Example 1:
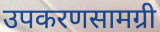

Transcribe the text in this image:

उपकरणसामग्री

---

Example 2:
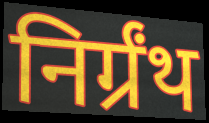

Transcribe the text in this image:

निर्ग्रंथ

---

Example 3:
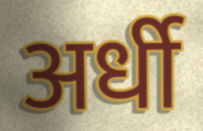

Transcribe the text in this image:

अर्धी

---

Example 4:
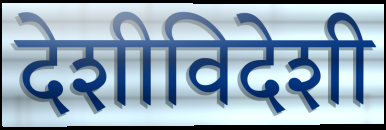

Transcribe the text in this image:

देशीविदेशी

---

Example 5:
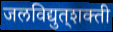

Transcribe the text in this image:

जलविद्युत्‌शक्ती